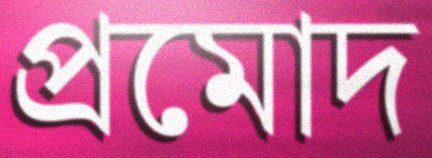
প্ৰমোদ